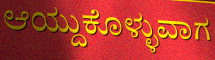
ಆಯ್ದುಕೊಳ್ಳುವಾಗ